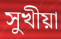
সুখীয়া